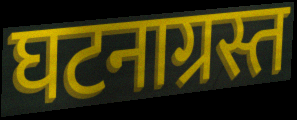
घटनाग्रस्त